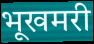
भूखमरी